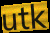
utk